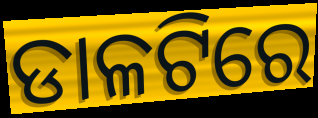
ଡାଳଟିରେ